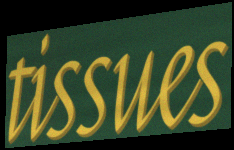
tissues